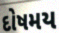
દોષમય